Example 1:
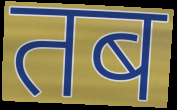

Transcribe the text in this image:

तब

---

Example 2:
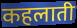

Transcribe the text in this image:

कहलाती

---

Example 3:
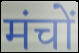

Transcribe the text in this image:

मंचों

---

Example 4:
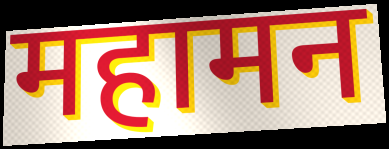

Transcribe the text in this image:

महामन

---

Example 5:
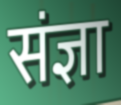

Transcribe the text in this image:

संज्ञा